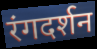
रंगदर्शन